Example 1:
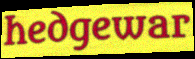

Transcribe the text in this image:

hedgewar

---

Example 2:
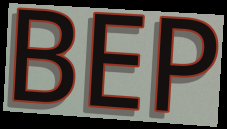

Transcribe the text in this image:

BEP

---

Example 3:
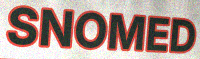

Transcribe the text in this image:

SNOMED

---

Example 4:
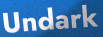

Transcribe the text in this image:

Undark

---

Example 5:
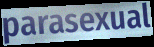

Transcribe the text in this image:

parasexual